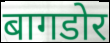
बागडोर